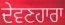
ਦੇਵਣਹਾਰਾ